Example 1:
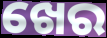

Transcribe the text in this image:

ଖେର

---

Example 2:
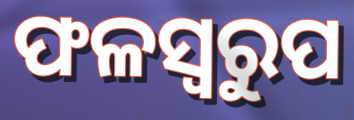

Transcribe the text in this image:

ଫଳସ୍ୱରୁପ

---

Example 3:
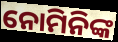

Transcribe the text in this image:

ନୋମିନିଙ୍କ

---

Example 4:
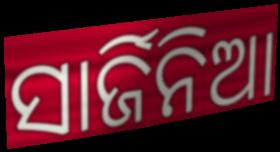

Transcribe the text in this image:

ସାର୍ଜିନିଆ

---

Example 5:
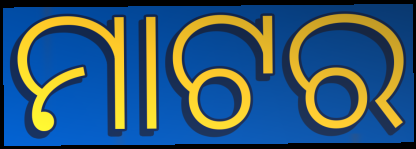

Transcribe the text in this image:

ମାଟର